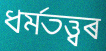
ধৰ্মতত্ত্বৰ